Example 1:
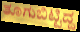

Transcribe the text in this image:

ತೂಗುಬಿಟ್ಟಿದ್ದ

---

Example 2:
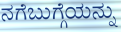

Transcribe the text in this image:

ನಗೆಬುಗ್ಗೆಯನ್ನು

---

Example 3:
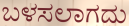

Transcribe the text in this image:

ಬಳಸಲಾಗದು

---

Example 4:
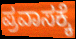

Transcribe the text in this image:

ಪ್ರವಾಸಕ್ಕೆ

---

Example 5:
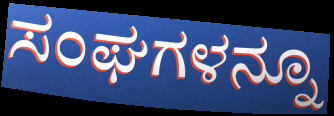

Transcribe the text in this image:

ಸಂಘಗಳನ್ನೂ